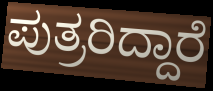
ಪುತ್ರರಿದ್ದಾರೆ